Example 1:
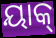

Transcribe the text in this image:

ୟାକ୍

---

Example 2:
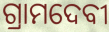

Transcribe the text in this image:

ଗ୍ରାମଦେବୀ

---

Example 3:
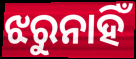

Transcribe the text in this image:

ଝରୁନାହିଁ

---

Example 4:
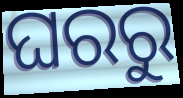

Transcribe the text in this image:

ଘରରୁ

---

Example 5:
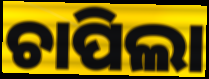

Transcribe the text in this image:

ଚାପିଲା